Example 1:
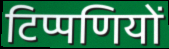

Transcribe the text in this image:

टिप्पणियों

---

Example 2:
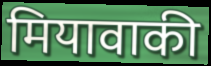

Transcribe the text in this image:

मियावाकी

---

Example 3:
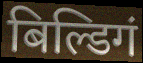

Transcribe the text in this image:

बिल्डिगं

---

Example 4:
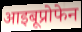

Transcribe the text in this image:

आइबूप्रोफेन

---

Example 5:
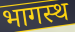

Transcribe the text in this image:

भागस्थ